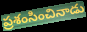
ప్రశంసించినాడు